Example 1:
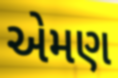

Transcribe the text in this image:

એમણ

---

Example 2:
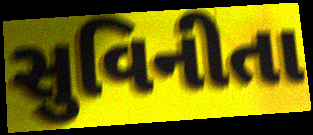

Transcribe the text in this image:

સુવિનીતા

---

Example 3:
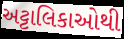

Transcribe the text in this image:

અટ્ટાલિકાઓથી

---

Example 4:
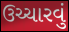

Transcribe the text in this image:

ઉચ્ચારવું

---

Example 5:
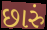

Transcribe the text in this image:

છારું